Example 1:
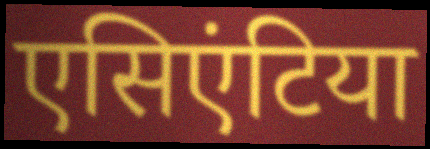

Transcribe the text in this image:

एसिएंटिया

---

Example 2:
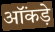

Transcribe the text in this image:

ऑंकड़े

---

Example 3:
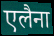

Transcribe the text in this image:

एलैना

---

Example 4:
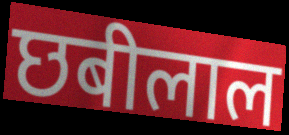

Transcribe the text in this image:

छबीलाल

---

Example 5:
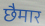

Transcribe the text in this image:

छैमार